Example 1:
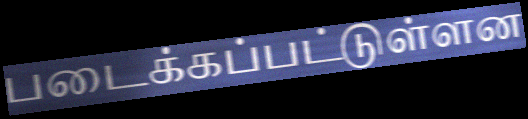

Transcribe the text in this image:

படைக்கப்பட்டுள்ளன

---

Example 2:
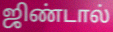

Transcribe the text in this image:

ஜிண்டால்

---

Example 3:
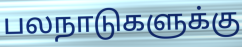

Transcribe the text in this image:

பலநாடுகளுக்கு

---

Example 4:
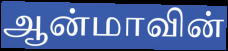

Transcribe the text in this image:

ஆன்மாவின்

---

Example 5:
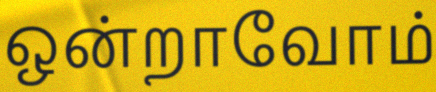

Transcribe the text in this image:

ஒன்றாவோம்